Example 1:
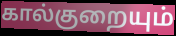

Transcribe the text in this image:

கால்குறையும்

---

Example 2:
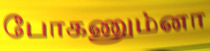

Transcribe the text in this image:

போகணும்னா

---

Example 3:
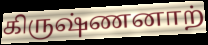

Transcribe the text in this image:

கிருஷ்ணனாற்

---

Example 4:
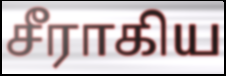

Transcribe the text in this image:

சீராகிய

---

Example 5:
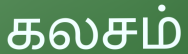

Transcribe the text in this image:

கலசம்